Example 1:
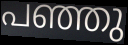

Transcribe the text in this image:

പഞ്ഞു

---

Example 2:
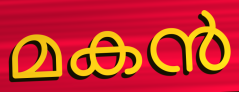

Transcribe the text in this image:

മകൻ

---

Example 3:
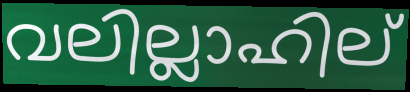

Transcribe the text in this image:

വലില്ലാഹില്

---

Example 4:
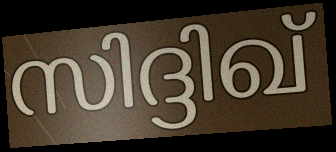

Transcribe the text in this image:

സിദ്ദിഖ്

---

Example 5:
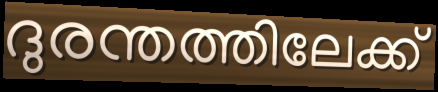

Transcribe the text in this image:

ദുരന്തത്തിലേക്ക്